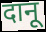
दानू